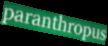
paranthropus